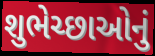
શુભેચ્છાઓનું